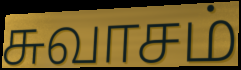
சுவாசம்